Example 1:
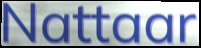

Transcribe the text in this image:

Nattaar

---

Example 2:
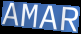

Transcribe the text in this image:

AMAR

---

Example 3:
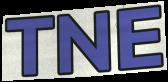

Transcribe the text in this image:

TNE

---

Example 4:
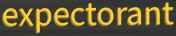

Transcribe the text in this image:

expectorant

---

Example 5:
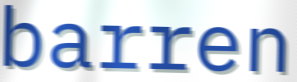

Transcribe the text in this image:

barren